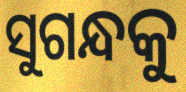
ସୁଗନ୍ଧକୁ